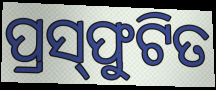
ପ୍ରସ୍‌ଫୁଟିତ